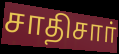
சாதிசார்